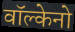
वॉल्केनो